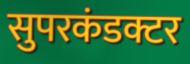
सुपरकंडक्टर